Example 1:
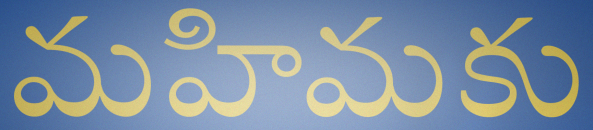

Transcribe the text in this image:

మహిమకు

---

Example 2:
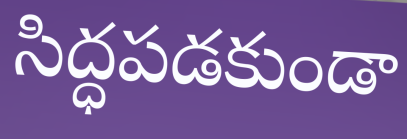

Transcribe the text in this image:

సిద్ధపడకుండా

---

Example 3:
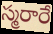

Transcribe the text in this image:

స్మరారే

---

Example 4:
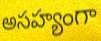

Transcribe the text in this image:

అసహ్యంగా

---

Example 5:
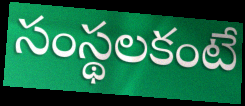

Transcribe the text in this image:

సంస్థలకంటే